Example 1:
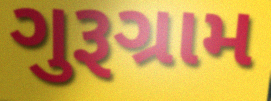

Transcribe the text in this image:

ગુરૂગ્રામ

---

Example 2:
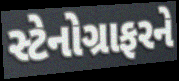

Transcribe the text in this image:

સ્ટેનોગ્રાફરને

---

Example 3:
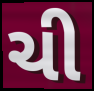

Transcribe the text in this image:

ચી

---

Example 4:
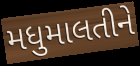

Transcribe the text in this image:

મધુમાલતીને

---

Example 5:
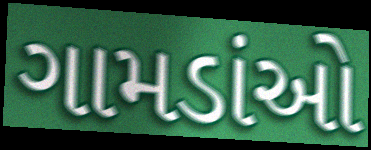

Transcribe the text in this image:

ગામડાંઓ